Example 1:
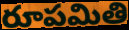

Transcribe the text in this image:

రూపమితి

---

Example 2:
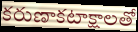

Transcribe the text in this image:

కరుణాకటాక్షాలతో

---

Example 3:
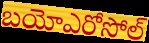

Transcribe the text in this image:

బయోఎరోసోల్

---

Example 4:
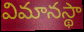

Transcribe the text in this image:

విమానస్థా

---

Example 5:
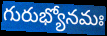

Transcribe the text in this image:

గురుభ్యోనమః